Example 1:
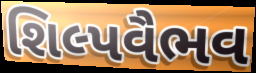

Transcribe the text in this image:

શિલ્પવૈભવ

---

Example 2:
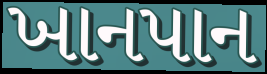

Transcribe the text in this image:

ખાનપાન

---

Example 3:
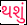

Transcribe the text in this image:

થશું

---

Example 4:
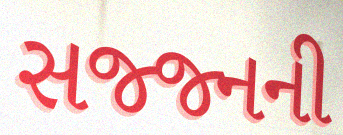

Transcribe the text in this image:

સજ્જ્નની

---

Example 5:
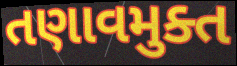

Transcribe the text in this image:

તણાવમુક્ત